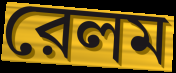
রেলম